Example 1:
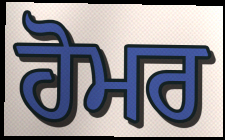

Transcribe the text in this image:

ਹੋਮਰ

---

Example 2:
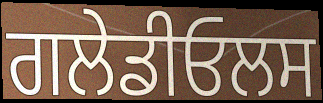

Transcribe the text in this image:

ਗਲੇਡੀਓਲਸ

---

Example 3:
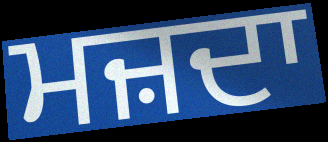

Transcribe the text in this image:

ਮਜ਼ਦਾ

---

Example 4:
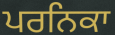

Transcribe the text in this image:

ਪਰਨਿਕਾ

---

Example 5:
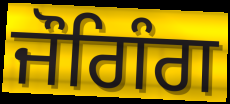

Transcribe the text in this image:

ਜੌਗਿੰਗ